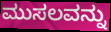
ಮುಸಲವನ್ನು